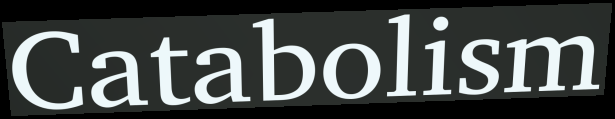
Catabolism